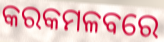
କରକମଳବରେ